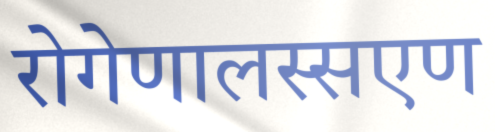
रोगेणालस्सएण